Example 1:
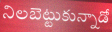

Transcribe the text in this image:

నిలబెట్టుకున్నాడో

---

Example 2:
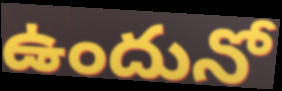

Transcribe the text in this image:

ఉందునో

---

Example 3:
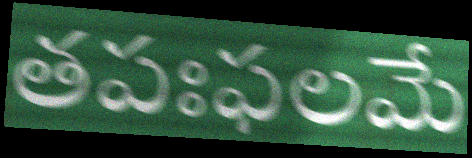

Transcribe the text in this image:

తపఃఫలమే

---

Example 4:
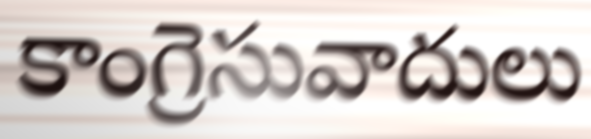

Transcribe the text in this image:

కాంగ్రెసువాదులు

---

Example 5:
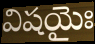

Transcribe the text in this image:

విషయైః